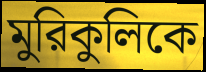
মুরিকুলিকে